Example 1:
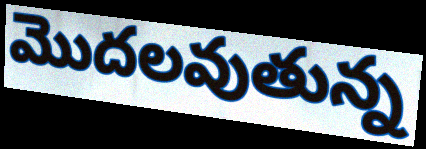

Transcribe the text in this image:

మొదలవుతున్న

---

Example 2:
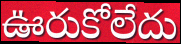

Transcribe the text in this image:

ఊరుకోలేదు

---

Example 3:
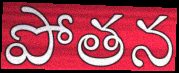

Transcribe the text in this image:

పోతన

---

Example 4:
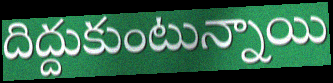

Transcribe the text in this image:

దిద్దుకుంటున్నాయి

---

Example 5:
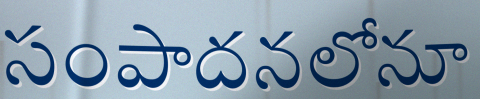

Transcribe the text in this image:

సంపాదనలోనూ